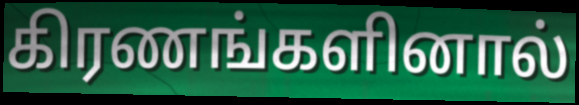
கிரணங்களினால்